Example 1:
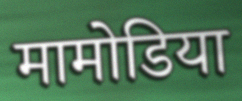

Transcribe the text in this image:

मामोडिया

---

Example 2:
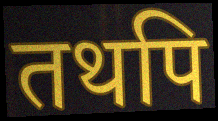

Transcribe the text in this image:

तथपि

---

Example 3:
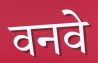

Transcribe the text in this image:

वनवे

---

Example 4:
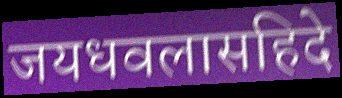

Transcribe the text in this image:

जयधवलासहिदे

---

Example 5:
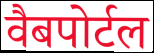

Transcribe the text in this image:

वैबपोर्टल